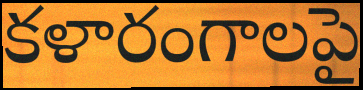
కళారంగాలపై